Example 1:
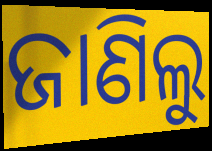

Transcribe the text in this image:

ଜାଣିଲୁ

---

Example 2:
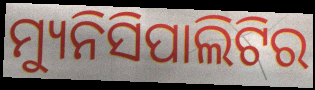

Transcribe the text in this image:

ମ୍ୟୁନିସିପାଲିଟିର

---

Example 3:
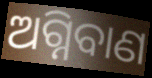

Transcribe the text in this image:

ଅଗ୍ନିବାଣ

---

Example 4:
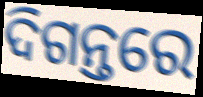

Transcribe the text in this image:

ଦିଗନ୍ତରେ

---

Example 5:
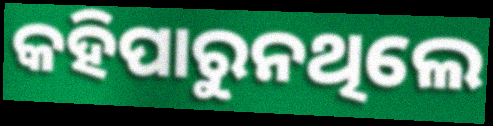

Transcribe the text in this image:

କହିପାରୁନଥିଲେ